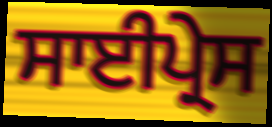
ਸਾਈਪ੍ਰੇਸ